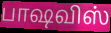
பாஷவிஸ்